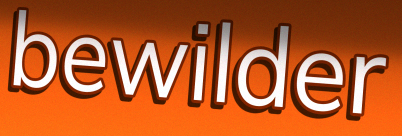
bewilder